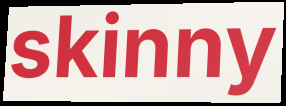
skinny